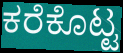
ಕರೆಕೊಟ್ಟ